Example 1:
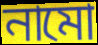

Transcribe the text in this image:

নামো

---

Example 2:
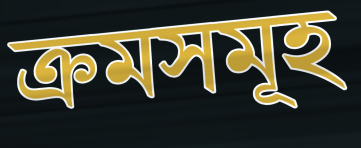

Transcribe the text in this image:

ক্ৰমসমূহ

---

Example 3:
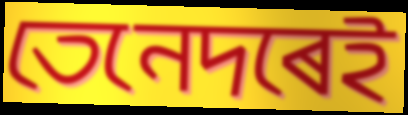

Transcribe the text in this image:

তেনেদৰেই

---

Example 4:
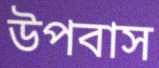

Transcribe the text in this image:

উপবাস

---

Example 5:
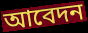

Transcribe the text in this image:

আবেদন